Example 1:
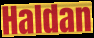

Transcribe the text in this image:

Haldan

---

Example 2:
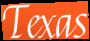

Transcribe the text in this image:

Texas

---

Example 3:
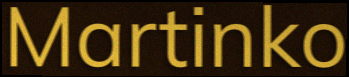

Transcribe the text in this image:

Martinko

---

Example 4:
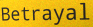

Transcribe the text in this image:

Betrayal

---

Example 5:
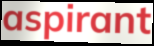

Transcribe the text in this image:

aspirant